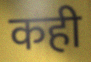
कही